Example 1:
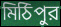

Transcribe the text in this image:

মিঠিপুর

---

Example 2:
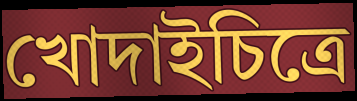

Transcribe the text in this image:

খোদাইচিত্রে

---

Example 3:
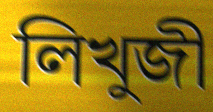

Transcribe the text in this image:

লিখুজী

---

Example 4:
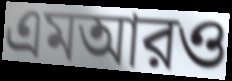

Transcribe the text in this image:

এমআরও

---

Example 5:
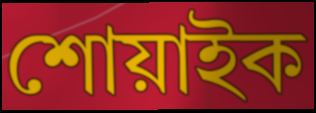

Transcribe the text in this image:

শোয়াইক